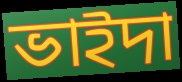
ভাইদা